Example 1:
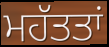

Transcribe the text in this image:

ਮਹੱਤਤਾਂ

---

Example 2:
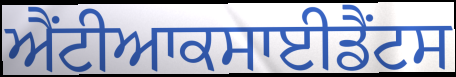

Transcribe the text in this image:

ਐਂਟੀਆਕਸਾਈਡੈਂਟਸ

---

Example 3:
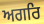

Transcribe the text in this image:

ਅਗਰਿ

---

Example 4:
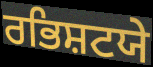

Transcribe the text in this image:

ਰਭਿਸ਼ਟਯੇ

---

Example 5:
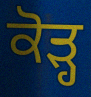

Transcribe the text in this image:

ਕੋੜ੍ਹ